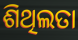
ଶିଥିଲତା